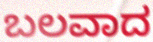
ಬಲವಾದ